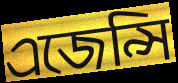
এজেন্সি